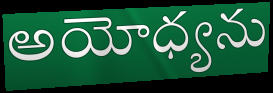
అయోధ్యను